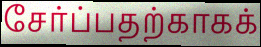
சேர்ப்பதற்காகக்